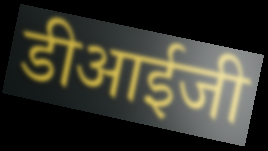
डीआईजी